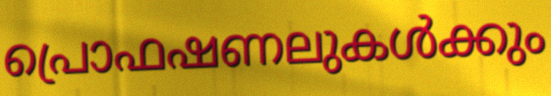
പ്രൊഫഷണലുകൾക്കും